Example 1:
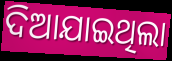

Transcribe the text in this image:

ଦିଆଯାଇଥିଲା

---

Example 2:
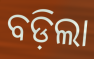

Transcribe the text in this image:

ବଡ଼ିଲା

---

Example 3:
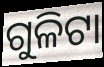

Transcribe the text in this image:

ଗୁଳିଟା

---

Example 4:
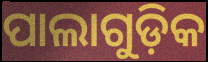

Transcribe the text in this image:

ପାଲାଗୁଡ଼ିକ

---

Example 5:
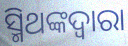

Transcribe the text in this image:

ସ୍ମିଥଙ୍କଦ୍ୱାରା